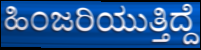
ಹಿಂಜರಿಯುತ್ತಿದ್ದೆ